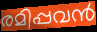
രമിപ്പവൻ